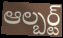
ఆల్బర్ట్